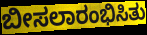
ಬೀಸಲಾರಂಭಿಸಿತು